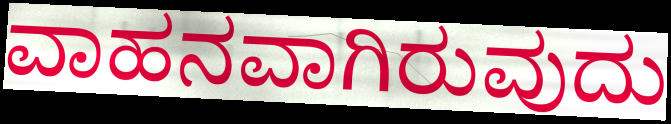
ವಾಹನವಾಗಿರುವುದು